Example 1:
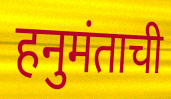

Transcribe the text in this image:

हनुमंताची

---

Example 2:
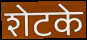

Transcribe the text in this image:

शेटके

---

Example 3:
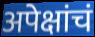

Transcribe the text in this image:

अपेक्षांचं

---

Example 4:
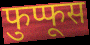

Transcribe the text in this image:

फुप्फूस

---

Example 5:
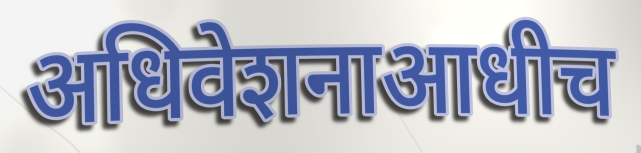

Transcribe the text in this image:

अधिवेशनाआधीच